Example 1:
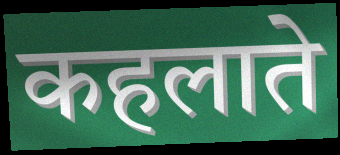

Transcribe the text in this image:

कहलाते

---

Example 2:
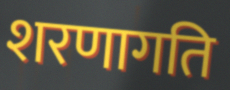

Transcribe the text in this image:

शरणागति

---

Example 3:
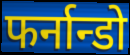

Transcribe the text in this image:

फर्नान्डो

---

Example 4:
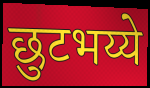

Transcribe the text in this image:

छुटभय्ये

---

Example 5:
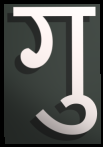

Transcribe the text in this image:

गु